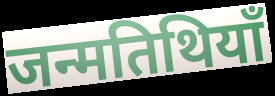
जन्मतिथियाँ